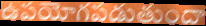
ఉపయోగపడుతుందా